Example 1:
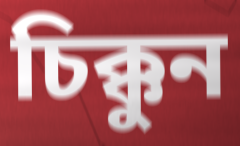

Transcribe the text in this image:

চিক্কুন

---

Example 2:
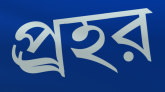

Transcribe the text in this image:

প্র্রহর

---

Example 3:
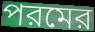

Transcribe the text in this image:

পরমের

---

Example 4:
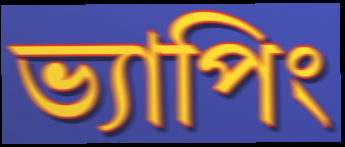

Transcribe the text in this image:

ভ্যাপিং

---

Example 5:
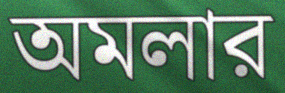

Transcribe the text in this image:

অমলার